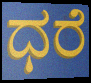
ಧರೆ